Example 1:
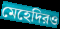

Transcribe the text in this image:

মেহেদিরও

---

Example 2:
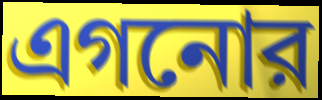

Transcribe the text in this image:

এগনোর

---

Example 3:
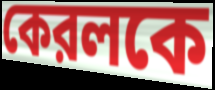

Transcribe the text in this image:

কেরলকে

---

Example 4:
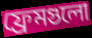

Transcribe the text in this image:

ফ্রেমগুলো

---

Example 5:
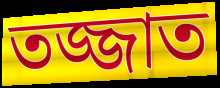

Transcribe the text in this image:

তজ্জাত